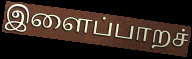
இளைப்பாறச்